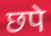
छपे